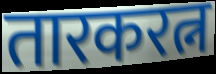
तारकरत्न